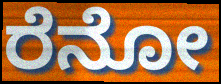
ರೆನೋ